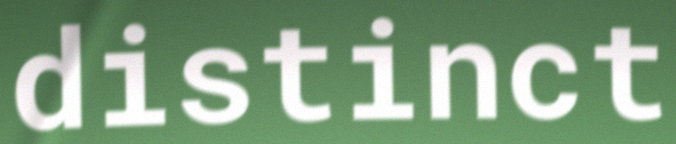
distinct